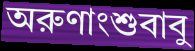
অরুণাংশুবাবু